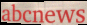
abcnews